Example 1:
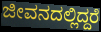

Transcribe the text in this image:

ಜೀವನದಲ್ಲಿದ್ದರೆ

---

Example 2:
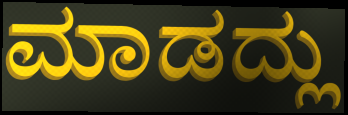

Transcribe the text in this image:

ಮಾಡದ್ಲು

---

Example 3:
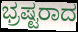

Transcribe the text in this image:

ಭ್ರಷ್ಟರಾದ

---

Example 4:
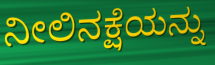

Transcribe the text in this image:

ನೀಲಿನಕ್ಷೆಯನ್ನು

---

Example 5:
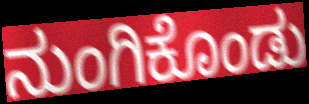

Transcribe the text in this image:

ನುಂಗಿಕೊಂಡು